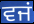
ਵਜਂ